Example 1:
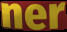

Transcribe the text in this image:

ner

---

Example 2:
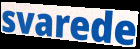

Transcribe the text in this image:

svarede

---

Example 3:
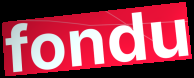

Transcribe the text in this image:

fondu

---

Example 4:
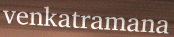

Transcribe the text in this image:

venkatramana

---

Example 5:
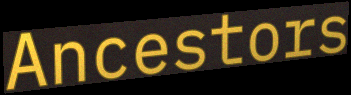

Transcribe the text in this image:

Ancestors